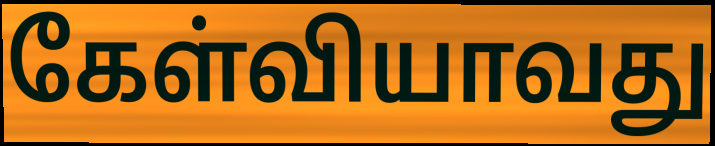
கேள்வியாவது